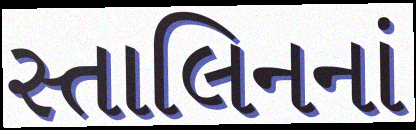
સ્તાલિનનાં